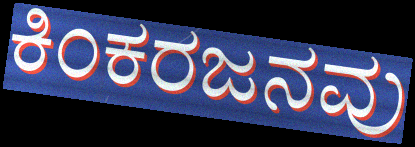
ಕಿಂಕರಜನವು